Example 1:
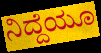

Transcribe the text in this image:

ನಿದ್ದೆಯೂ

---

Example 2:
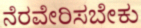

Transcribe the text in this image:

ನೆರವೇರಿಸಬೇಕು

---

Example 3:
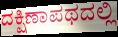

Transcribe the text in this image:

ದಕ್ಷಿಣಾಪಥದಲ್ಲಿ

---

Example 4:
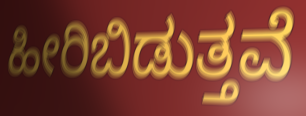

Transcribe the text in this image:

ಹೀರಿಬಿಡುತ್ತವೆ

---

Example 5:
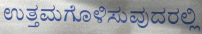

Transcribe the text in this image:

ಉತ್ತಮಗೊಳಿಸುವುದರಲ್ಲಿ